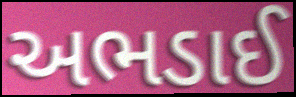
અભડાઈ